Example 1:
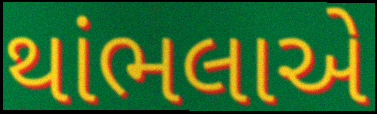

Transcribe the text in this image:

થાંભલાએ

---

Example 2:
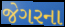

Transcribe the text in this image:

જેગરના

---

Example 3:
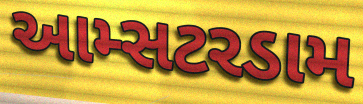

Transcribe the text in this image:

આમ્સટરડામ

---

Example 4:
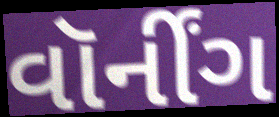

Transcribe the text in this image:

વૉર્નીંગ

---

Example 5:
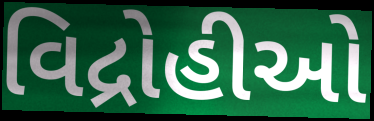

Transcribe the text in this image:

વિદ્રોહીઓ